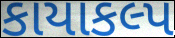
કાયાકલ્પ